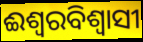
ଈଶ୍ବରବିଶ୍ବାସୀ